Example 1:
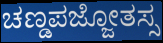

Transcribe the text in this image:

ಚಣ್ಡಪಜ್ಜೋತಸ್ಸ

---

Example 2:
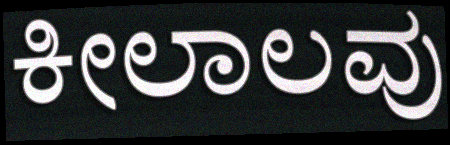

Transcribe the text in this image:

ಕೀಲಾಲವು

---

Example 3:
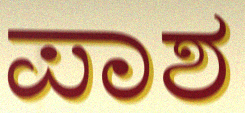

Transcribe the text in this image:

ಪಾಶ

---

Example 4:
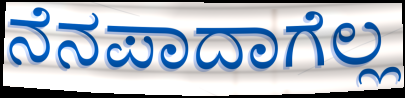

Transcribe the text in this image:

ನೆನಪಾದಾಗೆಲ್ಲ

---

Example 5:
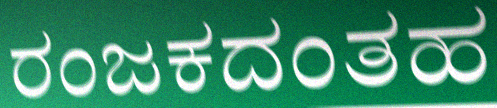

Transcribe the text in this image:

ರಂಜಕದಂತಹ